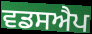
ਵਡਸਐਪ